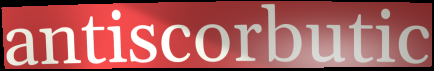
antiscorbutic